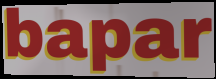
bapar